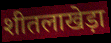
शीतलाखेड़ा